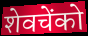
शेवचेंको